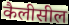
कैलीसील